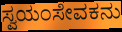
ಸ್ವಯಂಸೇವಕನು